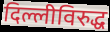
दिल्लीविरुद्ध